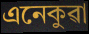
এনেকুৱা